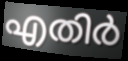
എതിർ